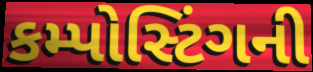
કમ્પોસ્ટિંગની